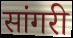
सांगरी